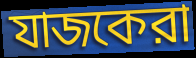
যাজকেরা